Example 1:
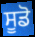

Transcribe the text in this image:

ਸੂਡੋ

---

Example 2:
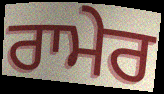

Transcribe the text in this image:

ਰਾਮੇਰ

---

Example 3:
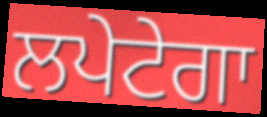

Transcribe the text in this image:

ਲਪੇਟੇਗਾ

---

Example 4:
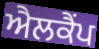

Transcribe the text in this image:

ਐਲਕੈਂਪ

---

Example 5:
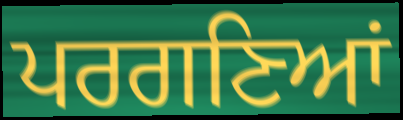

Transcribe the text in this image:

ਪਰਗਣਿਆਂ